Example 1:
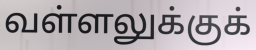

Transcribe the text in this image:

வள்ளலுக்குக்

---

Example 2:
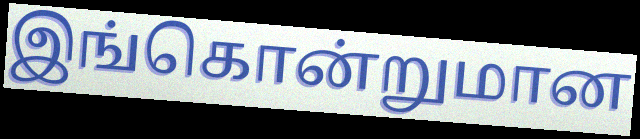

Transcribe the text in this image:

இங்கொன்றுமான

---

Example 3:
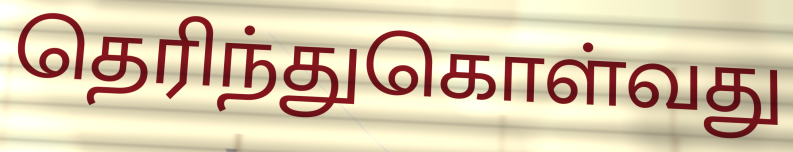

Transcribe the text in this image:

தெரிந்துகொள்வது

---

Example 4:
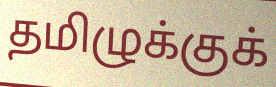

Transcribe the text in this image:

தமிழுக்குக்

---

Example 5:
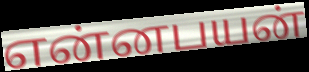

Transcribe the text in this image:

என்னபயன்